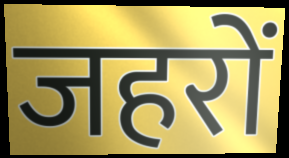
जहरों